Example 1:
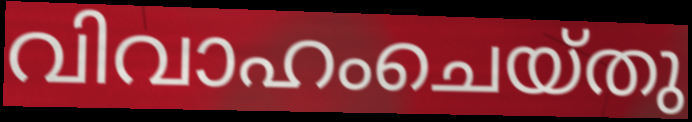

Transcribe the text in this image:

വിവാഹംചെയ്തു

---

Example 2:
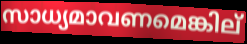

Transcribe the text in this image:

സാധ്യമാവണമെങ്കില്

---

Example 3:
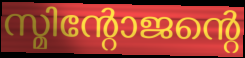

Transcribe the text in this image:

സ്മിന്റോജന്റെ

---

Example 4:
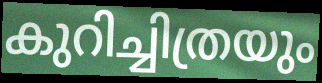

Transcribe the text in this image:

കുറിച്ചിത്രയും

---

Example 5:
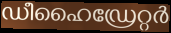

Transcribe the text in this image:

ഡീഹൈഡ്രേറ്റർ